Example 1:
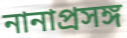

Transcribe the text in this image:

নানাপ্রসঙ্গ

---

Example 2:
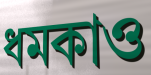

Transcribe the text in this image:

ধমকাও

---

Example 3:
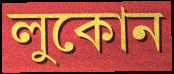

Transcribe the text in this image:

লুকোন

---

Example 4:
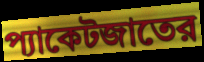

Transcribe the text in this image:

প্যাকেটজাতের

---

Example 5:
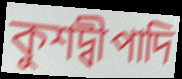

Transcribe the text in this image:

কুশদ্বীপাদি